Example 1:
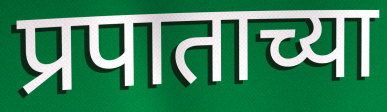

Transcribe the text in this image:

प्रपाताच्या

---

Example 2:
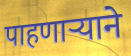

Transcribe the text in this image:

पाहणार्‍याने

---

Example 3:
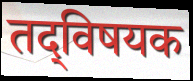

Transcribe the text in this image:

तद्‌विषयक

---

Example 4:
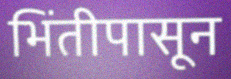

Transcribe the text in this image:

भिंतीपासून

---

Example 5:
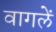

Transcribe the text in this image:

वागलें